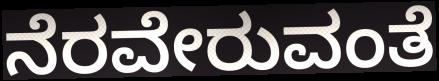
ನೆರವೇರುವಂತೆ